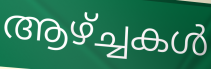
ആഴ്ച്ചകൾ